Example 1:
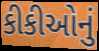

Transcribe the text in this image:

કીકીઓનું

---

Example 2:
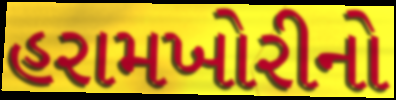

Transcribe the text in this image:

હરામખોરીનો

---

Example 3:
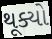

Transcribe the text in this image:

થૂક્યો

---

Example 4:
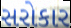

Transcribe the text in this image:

સરોકાર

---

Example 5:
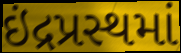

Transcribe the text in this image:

ઇંદ્રપ્રસ્થમાં